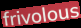
frivolous